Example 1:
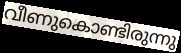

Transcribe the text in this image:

വീണുകൊണ്ടിരുന്നു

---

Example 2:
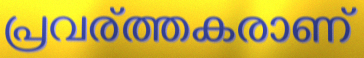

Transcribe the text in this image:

പ്രവര്ത്തകരാണ്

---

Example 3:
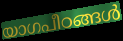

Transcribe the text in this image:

യാഗപീഠങ്ങൾ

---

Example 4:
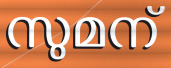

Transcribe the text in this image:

സുമന്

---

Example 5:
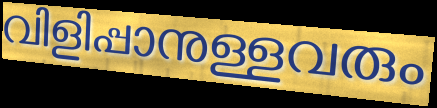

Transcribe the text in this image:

വിളിപ്പാനുള്ളവരും